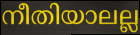
നീതിയാലല്ല